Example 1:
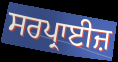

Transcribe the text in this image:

ਸਰਪ੍ਰਾਈਜ਼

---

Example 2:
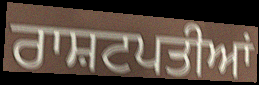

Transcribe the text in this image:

ਰਾਸ਼ਟਪਤੀਆਂ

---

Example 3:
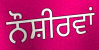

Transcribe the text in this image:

ਨੌਸ਼ੀਰਵਾਂ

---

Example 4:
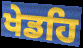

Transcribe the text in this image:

ਖੇਡਹਿ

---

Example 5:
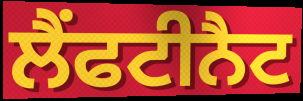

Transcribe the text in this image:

ਲੈਂਫਟੀਨੈਟ